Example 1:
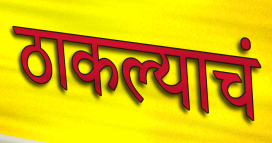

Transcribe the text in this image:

ठाकल्याचं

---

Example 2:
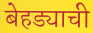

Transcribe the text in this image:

बेहड्याची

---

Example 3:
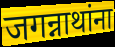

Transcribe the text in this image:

जगन्नाथांना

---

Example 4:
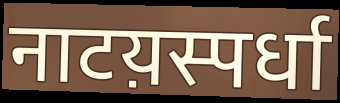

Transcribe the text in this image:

नाटय़स्पर्धा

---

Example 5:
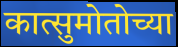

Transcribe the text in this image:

कात्सुमोतोच्या